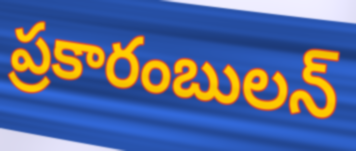
ప్రకారంబులన్